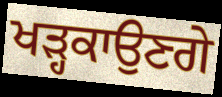
ਖੜ੍ਹਕਾਉਣਗੇ